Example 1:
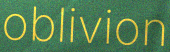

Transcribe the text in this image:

oblivion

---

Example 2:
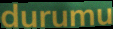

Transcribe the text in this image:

durumu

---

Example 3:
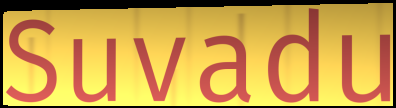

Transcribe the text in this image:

Suvadu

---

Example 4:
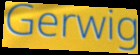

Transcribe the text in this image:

Gerwig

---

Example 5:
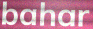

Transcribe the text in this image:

bahar